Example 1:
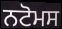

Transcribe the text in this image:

ਨਟੋਮਸ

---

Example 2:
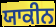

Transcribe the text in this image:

ਯਾਕੀਨ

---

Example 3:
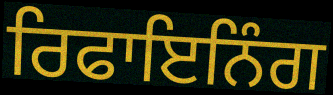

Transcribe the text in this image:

ਰਿਫਾਇਨਿੰਗ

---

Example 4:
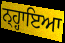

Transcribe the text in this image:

ਨ੍ਹ੍ਹਾਇਆ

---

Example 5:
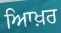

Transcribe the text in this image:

ਆਿਖ਼ਰ